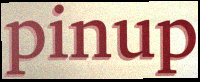
pinup